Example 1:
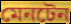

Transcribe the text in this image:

মেনটেন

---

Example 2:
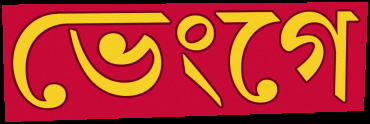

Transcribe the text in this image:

ভেংগে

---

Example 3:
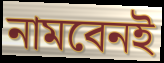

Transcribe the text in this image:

নামবেনই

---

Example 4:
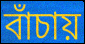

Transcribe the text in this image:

বাঁচায়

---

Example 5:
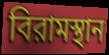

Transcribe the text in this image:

বিরামস্থান